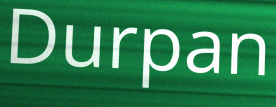
Durpan